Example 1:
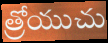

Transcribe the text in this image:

త్రోయుచు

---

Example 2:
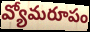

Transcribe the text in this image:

వ్యోమరూపం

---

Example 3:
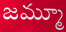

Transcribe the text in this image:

జమ్మూ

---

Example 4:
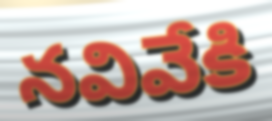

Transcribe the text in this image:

నవివేకి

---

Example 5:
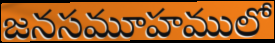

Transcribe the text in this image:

జనసమూహములో